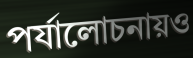
পর্যালোচনায়ও